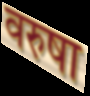
वरुषा